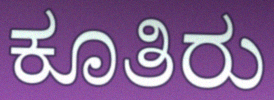
ಕೂತಿರು